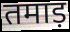
तमाड़